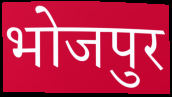
भोजपुर